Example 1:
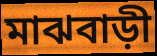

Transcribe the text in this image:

মাঝবাড়ী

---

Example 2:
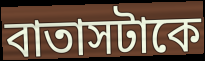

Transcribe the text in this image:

বাতাসটাকে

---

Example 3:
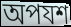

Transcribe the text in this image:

অপযশ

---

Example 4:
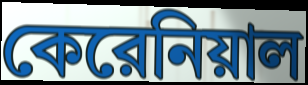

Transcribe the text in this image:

কেরেনিয়াল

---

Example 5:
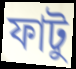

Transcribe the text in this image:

ফাটু